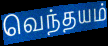
வெந்தயம்